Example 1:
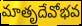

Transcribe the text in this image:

మాతృదేవోభవ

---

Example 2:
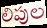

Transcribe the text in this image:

లిపుల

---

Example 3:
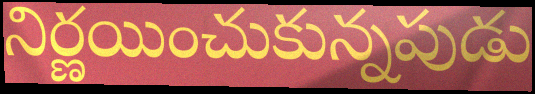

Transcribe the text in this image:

నిర్ణయించుకున్నపుడు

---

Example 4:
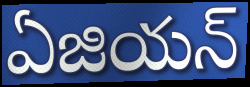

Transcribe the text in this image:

ఏజియన్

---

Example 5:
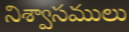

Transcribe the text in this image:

నిశ్వాసములు